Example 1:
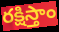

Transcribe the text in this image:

రక్షిస్తాం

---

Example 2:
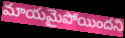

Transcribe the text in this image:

మాయమైపోయిందని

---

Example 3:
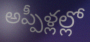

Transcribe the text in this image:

అప్పీళ్లల్లో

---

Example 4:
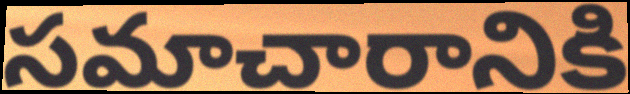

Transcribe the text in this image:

సమాచారానికి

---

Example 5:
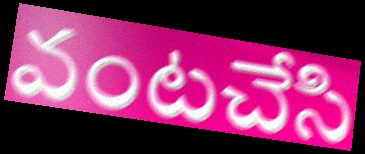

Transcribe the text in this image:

వంటచేసి